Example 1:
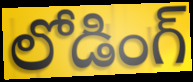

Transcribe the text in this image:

లోడింగ్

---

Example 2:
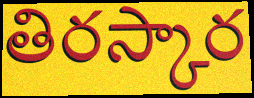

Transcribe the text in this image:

తిరస్కార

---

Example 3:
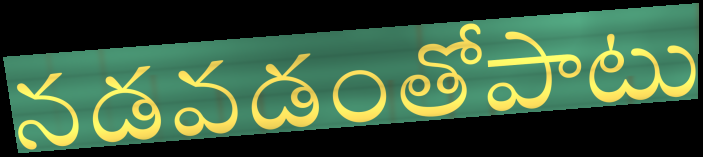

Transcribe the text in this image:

నడవడంతోపాటు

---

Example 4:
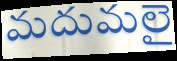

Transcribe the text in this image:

మదుమలై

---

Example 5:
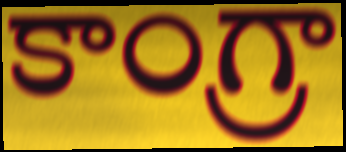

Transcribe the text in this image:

కాంగ్రా